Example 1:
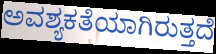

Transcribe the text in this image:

ಅವಶ್ಯಕತೆಯಾಗಿರುತ್ತದೆ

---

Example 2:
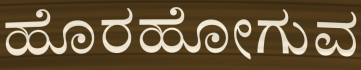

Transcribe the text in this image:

ಹೊರಹೋಗುವ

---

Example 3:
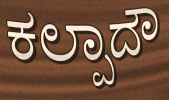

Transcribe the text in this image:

ಕಲ್ಪಾದೌ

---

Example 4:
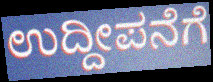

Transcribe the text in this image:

ಉದ್ದೀಪನೆಗೆ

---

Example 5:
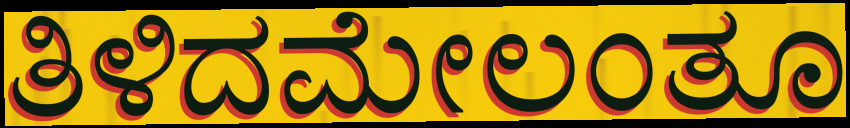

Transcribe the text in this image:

ತಿಳಿದಮೇಲಂತೂ